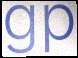
gp